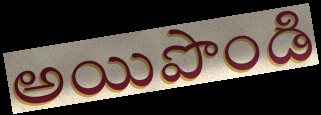
అయిపొండి